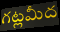
గట్లమీద